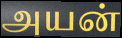
அயன்